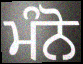
ਮੰਨੋ